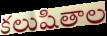
కలుషితాల